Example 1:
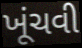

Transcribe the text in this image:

ખૂંચવી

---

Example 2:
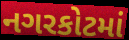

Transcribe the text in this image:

નગરકોટમાં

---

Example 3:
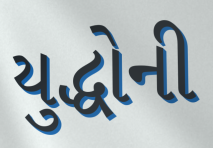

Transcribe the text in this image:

યુદ્ધોની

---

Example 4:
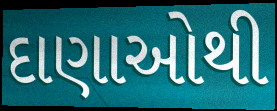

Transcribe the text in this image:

દાણાઓથી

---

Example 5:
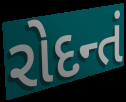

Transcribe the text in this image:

રોદન્તં